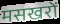
मसखरों